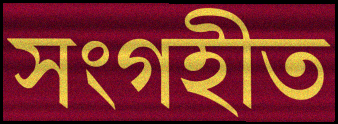
সংগহীত